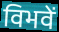
विभवें